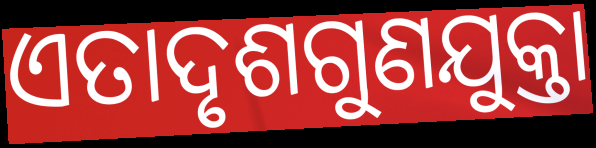
ଏତାଦୃଶଗୁଣଯୁକ୍ତା